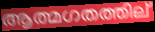
ആത്മഗതത്തില്